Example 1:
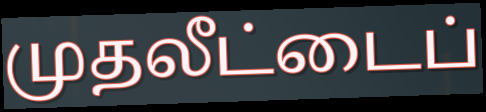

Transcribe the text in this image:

முதலீட்டைப்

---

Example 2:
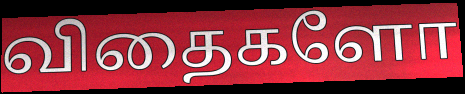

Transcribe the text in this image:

விதைகளோ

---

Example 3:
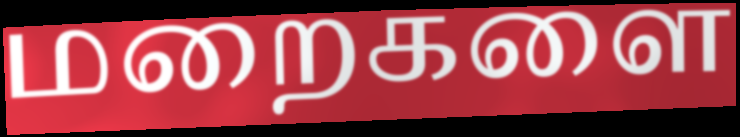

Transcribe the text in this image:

மறைகளை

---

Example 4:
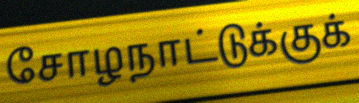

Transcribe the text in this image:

சோழநாட்டுக்குக்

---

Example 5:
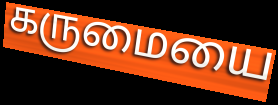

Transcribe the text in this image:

கருமையை